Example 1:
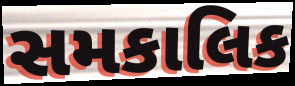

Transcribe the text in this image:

સમકાલિક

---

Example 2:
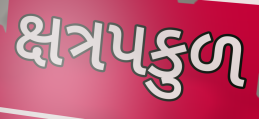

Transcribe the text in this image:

ક્ષત્રપકુળ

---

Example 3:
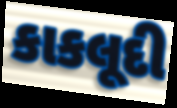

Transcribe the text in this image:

કાકલૂદી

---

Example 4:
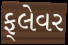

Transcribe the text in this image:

ફ્‌લેવર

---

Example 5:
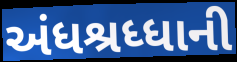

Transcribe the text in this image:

અંધશ્રધ્ધાની